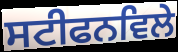
ਸਟੀਫਨਵਿਲੇ